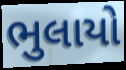
ભુલાયો